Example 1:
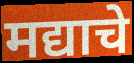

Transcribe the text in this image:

मद्याचे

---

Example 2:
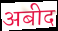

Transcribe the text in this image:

अबीद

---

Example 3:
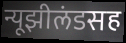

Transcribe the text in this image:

न्यूझीलंडसह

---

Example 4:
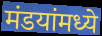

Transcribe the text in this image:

मंडयांमध्ये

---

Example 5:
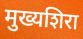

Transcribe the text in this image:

मुख्यशिरा